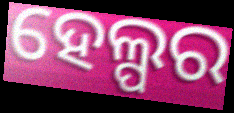
ହେଲ୍ପର